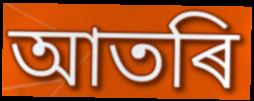
আতৰি